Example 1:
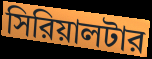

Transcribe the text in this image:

সিরিয়ালটার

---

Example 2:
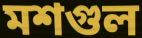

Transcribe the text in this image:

মশগুল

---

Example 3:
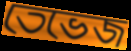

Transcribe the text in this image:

তেভেজ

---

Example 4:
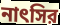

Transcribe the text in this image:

নাৎসির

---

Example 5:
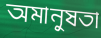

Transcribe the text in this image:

অমানুষতা